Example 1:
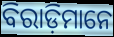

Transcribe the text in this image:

ବିରାଡ଼ିମାନେ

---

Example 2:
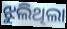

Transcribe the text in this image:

ଝୁଲିଥିଲା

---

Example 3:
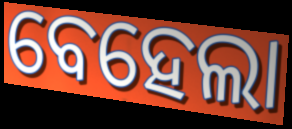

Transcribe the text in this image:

ବେହେଲା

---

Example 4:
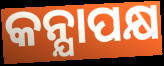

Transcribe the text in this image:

କନ୍ଯାପକ୍ଷ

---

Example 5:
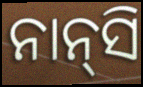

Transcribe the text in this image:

ନାନ୍‌ସି